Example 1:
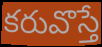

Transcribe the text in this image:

కరువొస్తే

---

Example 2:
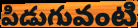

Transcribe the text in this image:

పిడుగువంటి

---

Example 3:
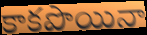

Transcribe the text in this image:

కాకపొయినా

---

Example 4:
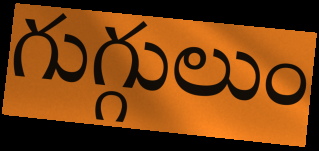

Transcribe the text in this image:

గుగ్గులుం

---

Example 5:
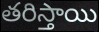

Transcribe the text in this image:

తరిస్తాయి